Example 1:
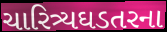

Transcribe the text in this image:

ચારિત્ર્યઘડતરના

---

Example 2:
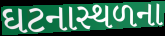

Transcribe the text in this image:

ઘટનાસ્થળના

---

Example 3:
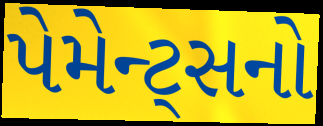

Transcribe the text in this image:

પેમેન્ટ્સનો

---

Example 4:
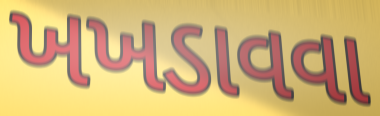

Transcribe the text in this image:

ખખડાવવા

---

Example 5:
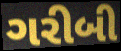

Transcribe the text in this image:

ગરીબી